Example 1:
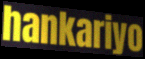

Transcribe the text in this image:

hankariyo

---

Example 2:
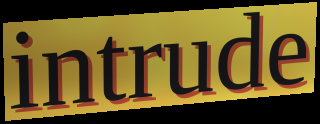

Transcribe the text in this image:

intrude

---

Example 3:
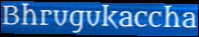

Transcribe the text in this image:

Bhrugukaccha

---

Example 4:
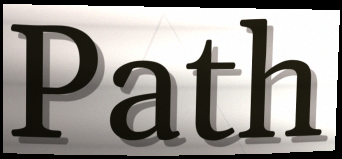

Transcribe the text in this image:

Path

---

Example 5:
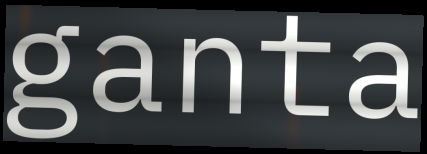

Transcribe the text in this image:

ganta